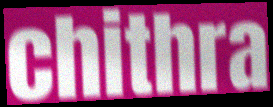
chithra